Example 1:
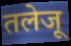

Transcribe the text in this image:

तलेजू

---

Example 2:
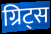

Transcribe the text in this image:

ग्रिट्स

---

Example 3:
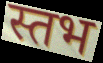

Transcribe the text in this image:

स्तभ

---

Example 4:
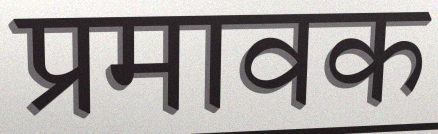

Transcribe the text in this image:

प्रमावक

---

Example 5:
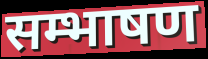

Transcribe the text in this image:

सम्भाषण